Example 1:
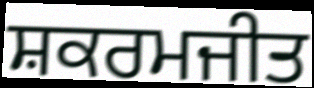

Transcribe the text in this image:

ਸ਼ਕਰਮਜੀਤ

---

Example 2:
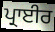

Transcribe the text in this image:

ਪ੍ਰਾਈਰ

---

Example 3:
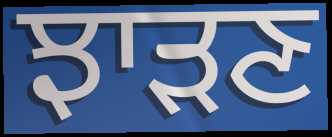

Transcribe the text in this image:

ਝਾੜਣ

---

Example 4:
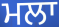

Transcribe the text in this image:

ਮਲਾ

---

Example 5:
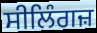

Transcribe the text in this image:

ਸੀਲਿੰਗਜ਼